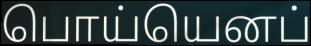
பொய்யெனப்